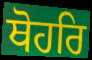
ਥੋਹਰਿ